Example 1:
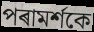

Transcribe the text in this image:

পৰামৰ্শকে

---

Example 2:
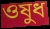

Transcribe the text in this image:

ওষুধ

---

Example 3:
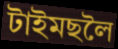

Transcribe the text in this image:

টাইমছলৈ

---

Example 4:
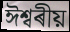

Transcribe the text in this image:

ঈশ্বৰীয়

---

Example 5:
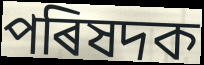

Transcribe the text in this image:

পৰিষদক